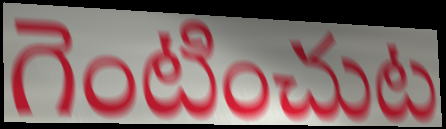
గెంటించుట